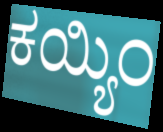
ಕಯ್ಯಿಂ